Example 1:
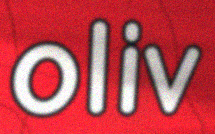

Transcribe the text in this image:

oliv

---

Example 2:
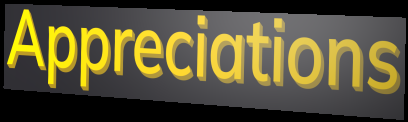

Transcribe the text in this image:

Appreciations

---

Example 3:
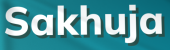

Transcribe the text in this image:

Sakhuja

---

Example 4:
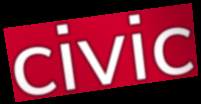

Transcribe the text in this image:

civic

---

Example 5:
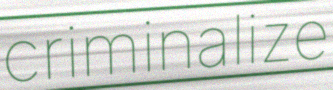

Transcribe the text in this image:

criminalize